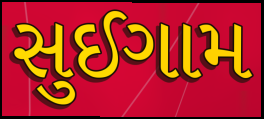
સુઈગામ